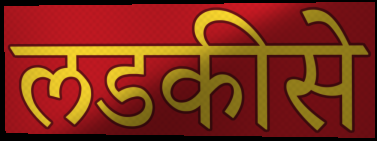
लडकीसे